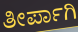
ತೀರ್ಪಾಗಿ